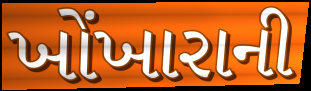
ખોંખારાની